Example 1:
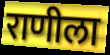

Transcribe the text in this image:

राणीला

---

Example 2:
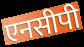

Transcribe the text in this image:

एनसीपी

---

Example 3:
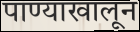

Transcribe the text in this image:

पाण्याखालून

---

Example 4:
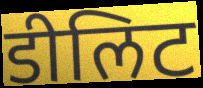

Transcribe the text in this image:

डीलिट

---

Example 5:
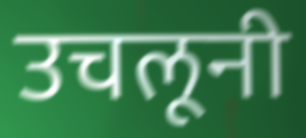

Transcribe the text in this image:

उचलूनी